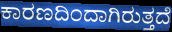
ಕಾರಣದಿಂದಾಗಿರುತ್ತದೆ